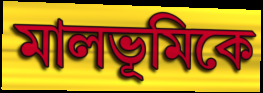
মালভূমিকে